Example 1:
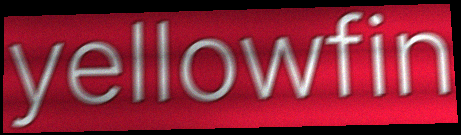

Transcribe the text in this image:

yellowfin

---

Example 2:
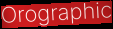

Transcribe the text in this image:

Orographic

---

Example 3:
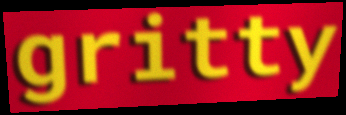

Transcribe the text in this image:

gritty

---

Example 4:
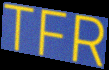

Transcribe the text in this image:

TFR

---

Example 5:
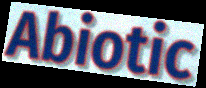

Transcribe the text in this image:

Abiotic